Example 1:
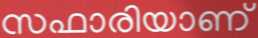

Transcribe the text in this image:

സഫാരിയാണ്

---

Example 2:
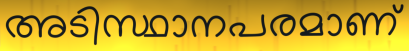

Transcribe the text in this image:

അടിസ്ഥാനപരമാണ്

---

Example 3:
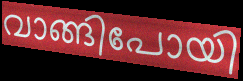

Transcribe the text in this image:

വാങ്ങിപോയി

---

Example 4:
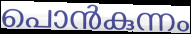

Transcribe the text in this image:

പൊൻകുന്നം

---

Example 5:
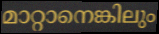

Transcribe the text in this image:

മാറ്റാനെങ്കിലും